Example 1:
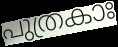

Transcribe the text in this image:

പുത്രകാഃ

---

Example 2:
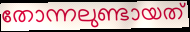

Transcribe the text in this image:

തോന്നലുണ്ടായത്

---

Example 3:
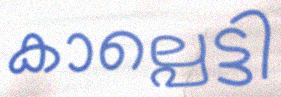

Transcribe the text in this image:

കാല്പെട്ടി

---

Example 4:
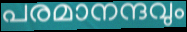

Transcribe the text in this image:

പരമാനന്ദവും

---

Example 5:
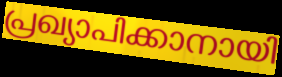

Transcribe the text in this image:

പ്രഖ്യാപിക്കാനായി